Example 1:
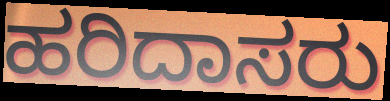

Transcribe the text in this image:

ಹರಿದಾಸರು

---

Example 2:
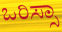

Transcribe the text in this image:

ಒರಿಸ್ಸಾ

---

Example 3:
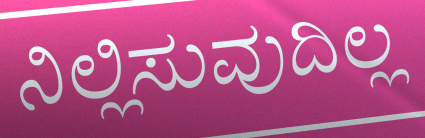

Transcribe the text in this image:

ನಿಲ್ಲಿಸುವುದಿಲ್ಲ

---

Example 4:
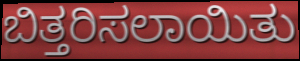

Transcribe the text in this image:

ಬಿತ್ತರಿಸಲಾಯಿತು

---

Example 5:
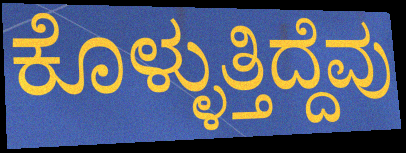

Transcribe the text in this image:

ಕೊಳ್ಳುತ್ತಿದ್ದೆವು